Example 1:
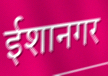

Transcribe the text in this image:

ईशानगर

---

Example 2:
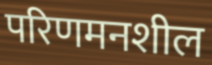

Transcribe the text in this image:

परिणमनशील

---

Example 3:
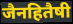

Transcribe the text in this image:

जैनहितैषी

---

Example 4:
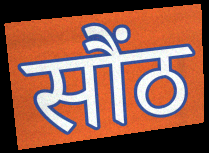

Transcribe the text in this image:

सौंठ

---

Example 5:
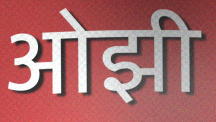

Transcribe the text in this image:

ओझी